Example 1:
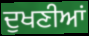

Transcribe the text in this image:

ਦੁਖਣੀਆਂ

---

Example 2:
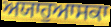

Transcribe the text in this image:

ਅਯਾਹੁਆਸਕਾ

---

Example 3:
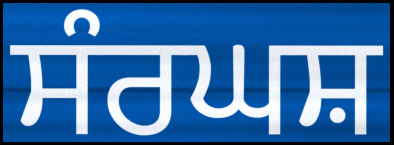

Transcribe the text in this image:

ਸੰਰਘਸ਼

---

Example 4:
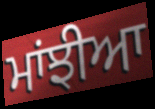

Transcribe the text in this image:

ਮਾਂਝੀਆ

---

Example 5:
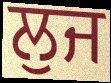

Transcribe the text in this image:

ਲੁਜ